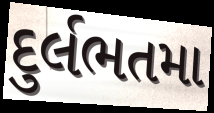
દુર્લભતમા